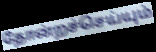
தோன்றச்செய்யும்